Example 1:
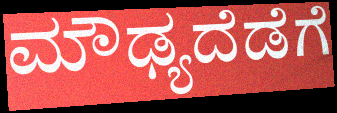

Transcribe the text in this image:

ಮೌಢ್ಯದೆಡೆಗೆ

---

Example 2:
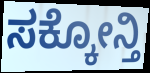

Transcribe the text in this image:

ಸಕ್ಕೋನ್ತಿ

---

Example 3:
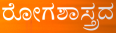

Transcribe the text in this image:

ರೋಗಶಾಸ್ತ್ರದ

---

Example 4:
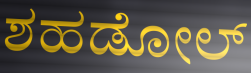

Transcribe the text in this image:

ಶಹಡೋಲ್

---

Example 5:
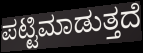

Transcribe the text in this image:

ಪಟ್ಟಿಮಾಡುತ್ತದೆ